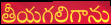
తీయగలిగాను